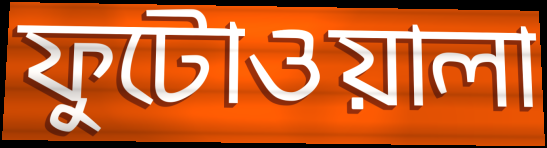
ফুটোওয়ালা